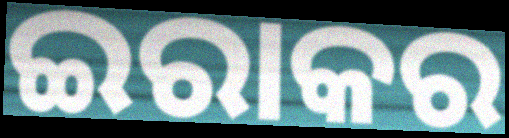
ଇରାକର